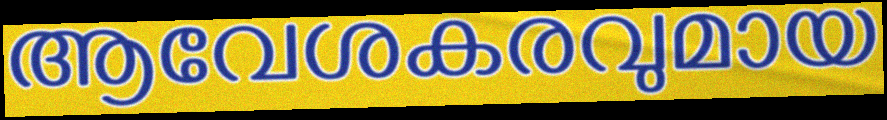
ആവേശകരവുമായ